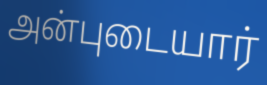
அன்புடையார்